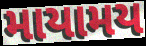
માયામય